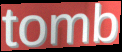
tomb